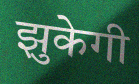
झुकेगी